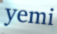
yemi